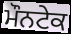
ਮੌਨਟੇਕ